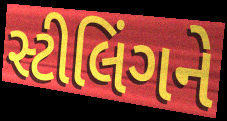
સ્ટીલિંગને